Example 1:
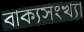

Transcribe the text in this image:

বাক্যসংখ্যা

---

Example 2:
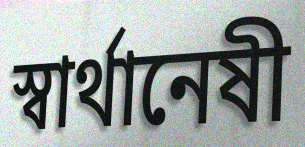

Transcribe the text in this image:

স্বার্থানেষী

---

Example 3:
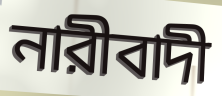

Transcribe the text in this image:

নারীবাদী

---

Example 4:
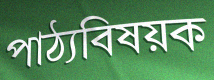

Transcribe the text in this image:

পাঠ্যবিষয়ক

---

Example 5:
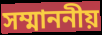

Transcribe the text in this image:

সম্মাননীয়